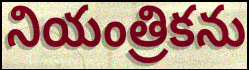
నియంత్రికను